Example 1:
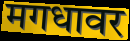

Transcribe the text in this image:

मगधावर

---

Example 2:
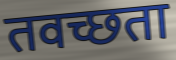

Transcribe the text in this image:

तवच्छता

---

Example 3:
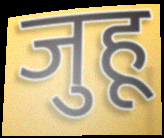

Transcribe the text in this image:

जुहू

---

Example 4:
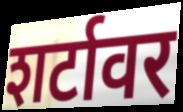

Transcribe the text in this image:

शर्टावर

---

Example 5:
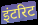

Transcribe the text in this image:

इंटरिट